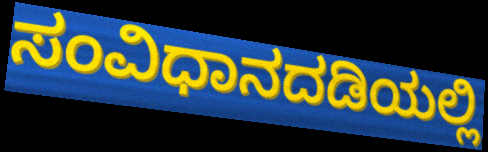
ಸಂವಿಧಾನದಡಿಯಲ್ಲಿ